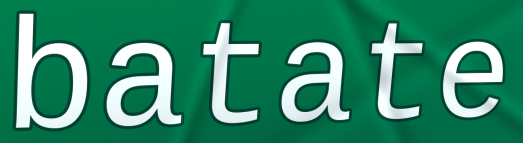
batate